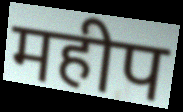
महीप